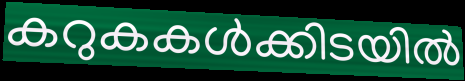
കറുകകൾക്കിടയിൽ